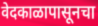
वेदकाळापासूनचा